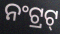
ନଂଟ୍ରଟ୍